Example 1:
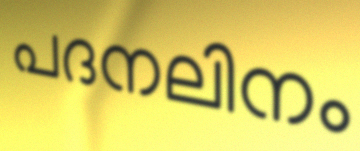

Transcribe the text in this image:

പദനലിനം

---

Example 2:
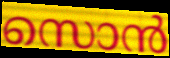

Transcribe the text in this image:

സൊൻ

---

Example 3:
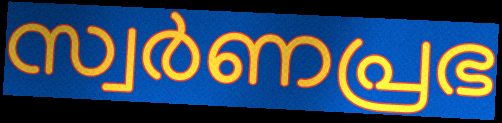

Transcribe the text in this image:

സ്വർണപ്രഭ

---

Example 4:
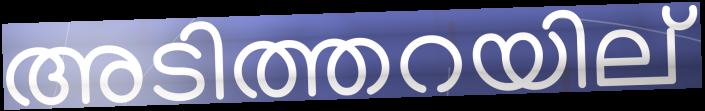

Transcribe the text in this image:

അടിത്തറയില്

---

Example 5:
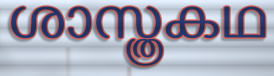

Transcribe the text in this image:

ശാസ്ത്രകഥ